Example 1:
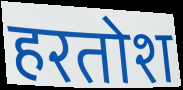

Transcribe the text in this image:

हरतोश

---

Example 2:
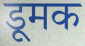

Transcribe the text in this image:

डूमक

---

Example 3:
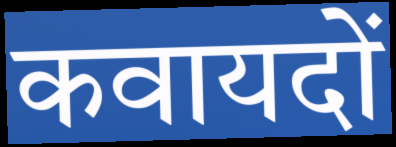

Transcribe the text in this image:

कवायदों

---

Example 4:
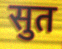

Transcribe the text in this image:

सुत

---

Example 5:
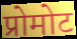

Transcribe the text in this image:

प्रोमोट